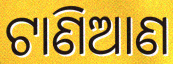
ଟାଣିଆଣ